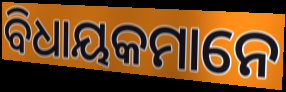
ବିଧାୟକମାନେ